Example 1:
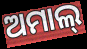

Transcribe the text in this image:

ଅମାଲ୍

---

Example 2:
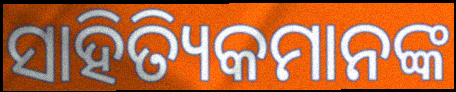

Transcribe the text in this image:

ସାହିତ୍ୟିକମାନଙ୍କ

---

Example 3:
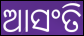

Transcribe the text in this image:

ଆସଂତି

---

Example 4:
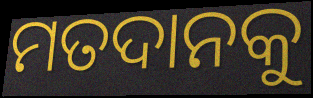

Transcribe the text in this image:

ମତଦାନକୁ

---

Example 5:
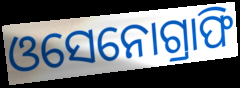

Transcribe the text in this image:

ଓସେନୋଗ୍ରାଫି